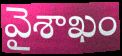
వైశాఖం